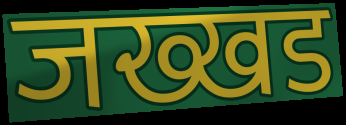
जख्खड